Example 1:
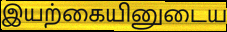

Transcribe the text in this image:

இயற்கையினுடைய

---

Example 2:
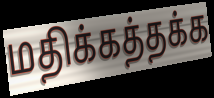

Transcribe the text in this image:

மதிக்கத்தக்க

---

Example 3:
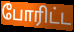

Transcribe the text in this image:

போரிட்ட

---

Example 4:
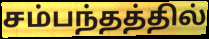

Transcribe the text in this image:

சம்பந்தத்தில்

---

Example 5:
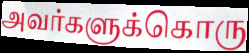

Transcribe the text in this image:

அவர்களுக்கொரு